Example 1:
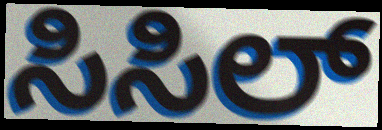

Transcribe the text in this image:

ಸಿಸಿಲ್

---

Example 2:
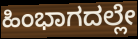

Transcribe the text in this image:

ಹಿಂಭಾಗದಲ್ಲೇ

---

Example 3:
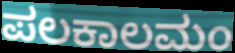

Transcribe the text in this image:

ಪಲಕಾಲಮಂ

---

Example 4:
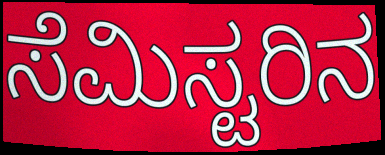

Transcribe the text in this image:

ಸೆಮಿಸ್ಟರಿನ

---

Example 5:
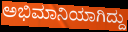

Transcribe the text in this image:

ಅಭಿಮಾನಿಯಾಗಿದ್ದು